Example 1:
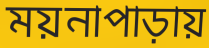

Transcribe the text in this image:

ময়নাপাড়ায়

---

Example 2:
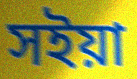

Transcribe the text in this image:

সইয়া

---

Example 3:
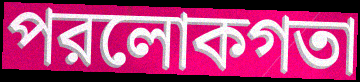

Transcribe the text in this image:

পরলোকগতা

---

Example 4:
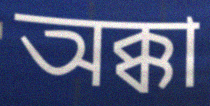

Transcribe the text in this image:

অক্কা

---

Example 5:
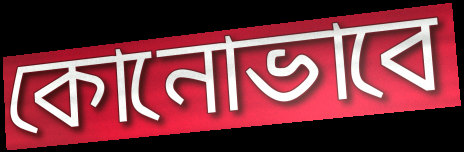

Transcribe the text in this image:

কোনোভাবে